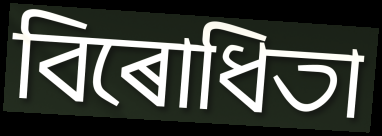
বিৰোধিতা